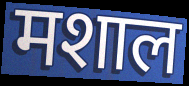
मशाल